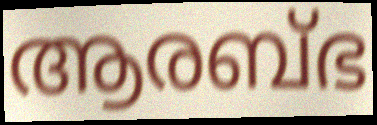
ആരബ്ഭ